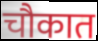
चौकात